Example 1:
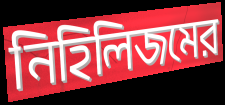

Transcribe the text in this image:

নিহিলিজমের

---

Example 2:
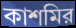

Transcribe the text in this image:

কাশমির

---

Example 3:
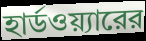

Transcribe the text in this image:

হার্ডওয়্যারের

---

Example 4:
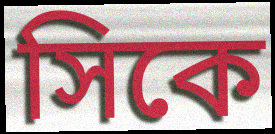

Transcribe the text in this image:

সিকে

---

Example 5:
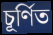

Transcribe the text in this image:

চূর্ণিত